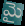
మై